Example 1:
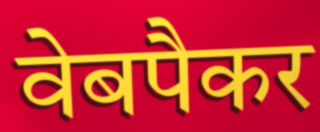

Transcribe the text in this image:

वेबपैकर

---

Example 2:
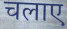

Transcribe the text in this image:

चलाए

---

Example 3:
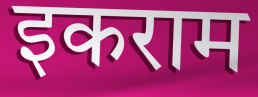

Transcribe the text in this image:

इकराम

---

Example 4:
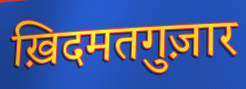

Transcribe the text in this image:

ख़िदमतगुज़ार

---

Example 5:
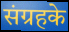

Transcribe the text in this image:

संग्रहके